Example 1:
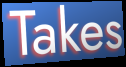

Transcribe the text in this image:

Takes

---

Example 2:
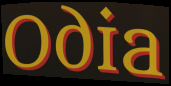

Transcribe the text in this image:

Odia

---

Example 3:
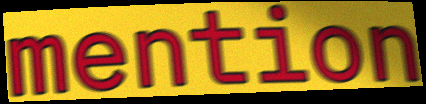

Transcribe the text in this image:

mention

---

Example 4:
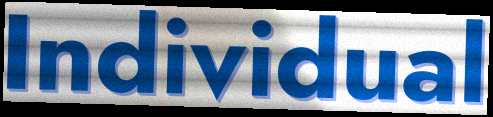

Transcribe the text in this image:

Individual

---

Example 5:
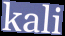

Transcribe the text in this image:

kali